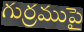
గుర్రముపై